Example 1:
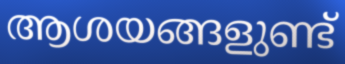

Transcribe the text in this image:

ആശയങ്ങളുണ്ട്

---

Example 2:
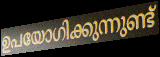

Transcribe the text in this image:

ഉപയോഗിക്കുന്നുണ്ട്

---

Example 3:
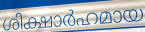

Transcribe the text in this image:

ശിക്ഷാർഹമായ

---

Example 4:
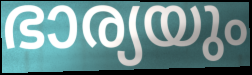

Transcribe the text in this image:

ഭാര്യയും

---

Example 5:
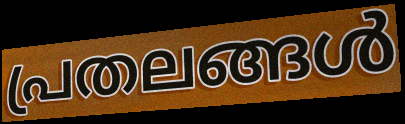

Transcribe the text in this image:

പ്രതലങ്ങൾ